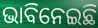
ଭାବିନେଇଛି